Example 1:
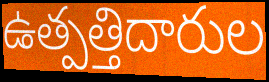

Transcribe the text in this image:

ఉత్పత్తిదారుల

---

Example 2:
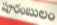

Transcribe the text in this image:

పూరంబులం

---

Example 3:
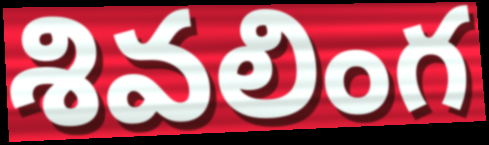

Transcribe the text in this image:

శివలింగ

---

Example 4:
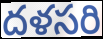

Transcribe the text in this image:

దళసరి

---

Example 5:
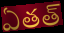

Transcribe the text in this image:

ఏతత్